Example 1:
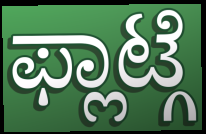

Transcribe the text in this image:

ಫ್ಲಾಟ್ಗೆ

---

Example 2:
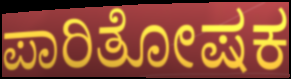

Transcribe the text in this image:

ಪಾರಿತೋಷಕ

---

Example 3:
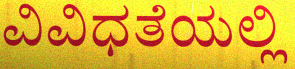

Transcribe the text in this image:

ವಿವಿಧತೆಯಲ್ಲಿ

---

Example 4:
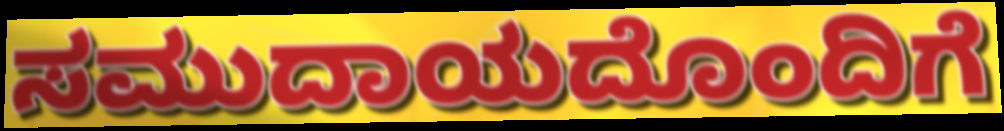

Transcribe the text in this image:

ಸಮುದಾಯದೊಂದಿಗೆ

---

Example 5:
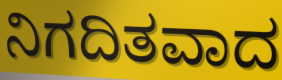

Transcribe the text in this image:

ನಿಗದಿತವಾದ